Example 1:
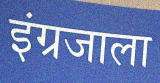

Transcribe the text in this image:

इंग्रजाला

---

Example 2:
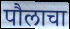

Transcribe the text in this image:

पौलाचा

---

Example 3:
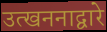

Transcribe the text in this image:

उत्खननाद्वारे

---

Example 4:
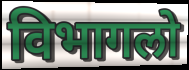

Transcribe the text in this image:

विभागलो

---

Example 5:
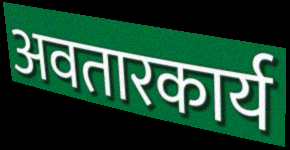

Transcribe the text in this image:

अवतारकार्य